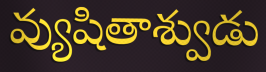
వ్యుషితాశ్వుడు